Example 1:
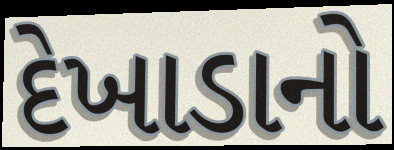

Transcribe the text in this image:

દેખાડાનો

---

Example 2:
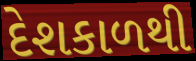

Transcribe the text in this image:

દેશકાળથી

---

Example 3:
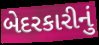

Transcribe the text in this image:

બેદરકારીનું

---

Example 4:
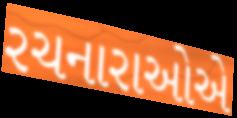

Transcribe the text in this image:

રચનારાઓએ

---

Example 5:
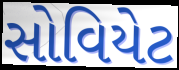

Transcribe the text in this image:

સોવિયેટ